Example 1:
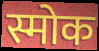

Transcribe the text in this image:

स्मोक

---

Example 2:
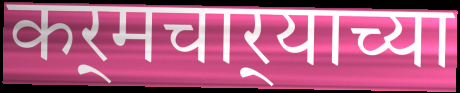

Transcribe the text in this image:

कर्मचार्याच्या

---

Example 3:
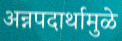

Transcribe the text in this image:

अन्नपदार्थामुळे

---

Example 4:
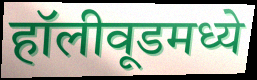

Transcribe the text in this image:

हॉलीवूडमध्ये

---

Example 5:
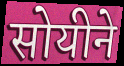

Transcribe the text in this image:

सोयीने